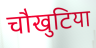
चौखुटिया